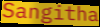
Sangitha